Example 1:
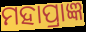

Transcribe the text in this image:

ମହାପ୍ରାଜ୍ଞ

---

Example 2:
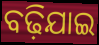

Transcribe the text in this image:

ବଢ଼ିଯାଇ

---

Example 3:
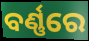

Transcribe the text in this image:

ବର୍ଣ୍ଣରେ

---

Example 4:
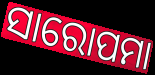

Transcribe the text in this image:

ସାରୋପମା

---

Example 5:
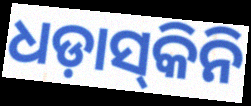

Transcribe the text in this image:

ଧଡ଼ାସ୍‌କିନି